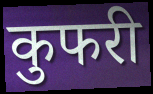
कुफरी